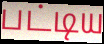
பட்டிய